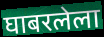
घाबरलेला